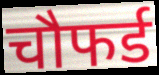
चौफर्ड